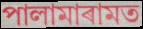
পালামাৰামত